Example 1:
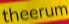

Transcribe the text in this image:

theerum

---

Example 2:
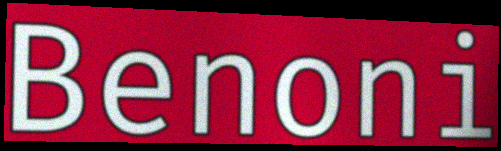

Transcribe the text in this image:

Benoni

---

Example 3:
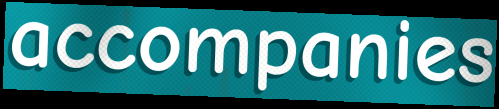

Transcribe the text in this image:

accompanies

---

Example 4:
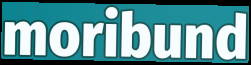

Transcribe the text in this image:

moribund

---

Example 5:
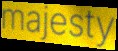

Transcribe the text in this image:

majesty